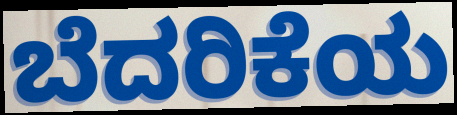
ಬೆದರಿಕೆಯ